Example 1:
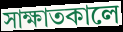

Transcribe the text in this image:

সাক্ষাতকালে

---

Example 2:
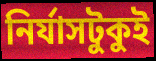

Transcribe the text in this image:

নির্যাসটুকুই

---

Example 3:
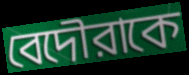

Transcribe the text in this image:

বেদৌরাকে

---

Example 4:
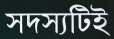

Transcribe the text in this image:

সদস্যটিই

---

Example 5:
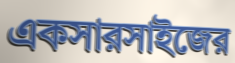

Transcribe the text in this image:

একসারসাইজের